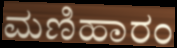
ಮಣಿಹಾರಂ